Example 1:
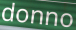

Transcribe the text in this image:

donno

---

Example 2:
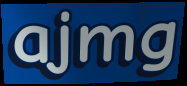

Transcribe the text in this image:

ajmg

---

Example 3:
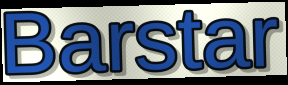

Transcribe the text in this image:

Barstar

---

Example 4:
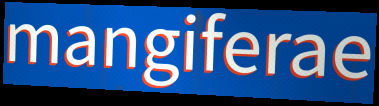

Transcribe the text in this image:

mangiferae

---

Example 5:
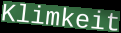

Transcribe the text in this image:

Klimkeit